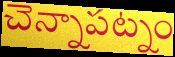
చెన్నాపట్నం